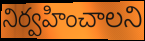
నిర్వహించాలని